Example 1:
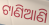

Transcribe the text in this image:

ଟାଣିଆଣି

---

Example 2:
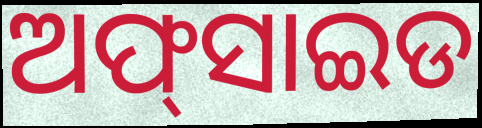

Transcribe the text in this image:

ଅଫ୍‍ସାଇଡ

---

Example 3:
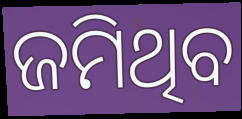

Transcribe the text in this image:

ଜମିଥିବ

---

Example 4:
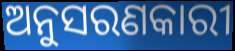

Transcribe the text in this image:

ଅନୁସରଣକାରୀ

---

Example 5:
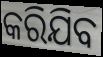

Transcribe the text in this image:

କରିଯିବ